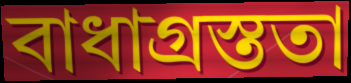
বাধাগ্ৰস্ততা